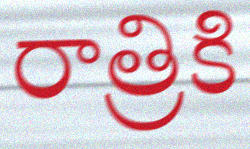
రాత్రికి